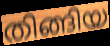
തിങ്ങിയ